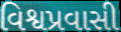
વિશ્વપ્રવાસી